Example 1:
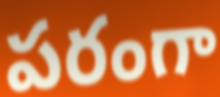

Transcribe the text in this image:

పరంగా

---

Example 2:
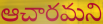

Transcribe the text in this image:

ఆచారమని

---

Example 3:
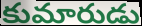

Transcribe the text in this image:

కుమారుడు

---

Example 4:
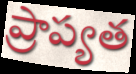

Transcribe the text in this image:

ప్రాప్యత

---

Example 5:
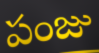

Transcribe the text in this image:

పంజు